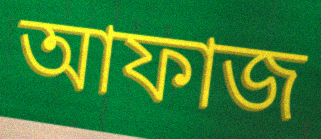
আফাজ